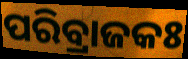
ପରିବ୍ରାଜକଃ